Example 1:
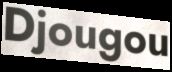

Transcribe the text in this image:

Djougou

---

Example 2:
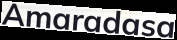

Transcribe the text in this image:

Amaradasa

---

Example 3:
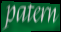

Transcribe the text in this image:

patern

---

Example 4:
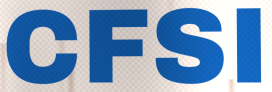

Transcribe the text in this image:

CFSI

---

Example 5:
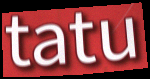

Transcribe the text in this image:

tatu